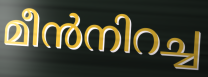
മീൻനിറച്ച